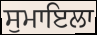
ਸੁਮਾਇਲਾ